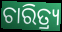
ଚାରିତ୍ର୍ୟ